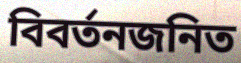
বিবর্তনজনিত